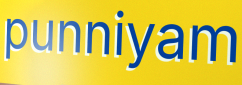
punniyam